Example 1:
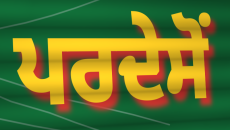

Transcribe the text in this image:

ਪਰਦੇਸੋਂ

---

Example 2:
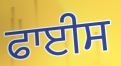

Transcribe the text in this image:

ਫਾਈਸ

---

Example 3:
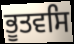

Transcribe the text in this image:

ਭੂਤਵਸਿ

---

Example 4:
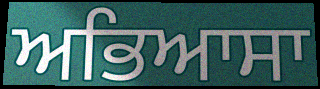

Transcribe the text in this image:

ਅਭਿਆਸਾ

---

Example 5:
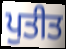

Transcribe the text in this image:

ਪੁਤੀਤ